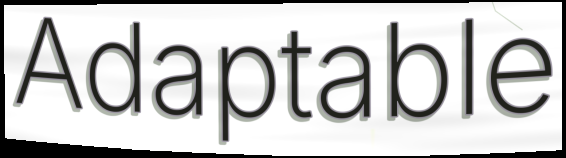
Adaptable